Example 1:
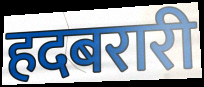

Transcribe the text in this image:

हदबरारी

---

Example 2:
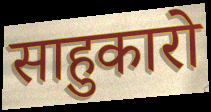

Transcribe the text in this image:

साहुकारो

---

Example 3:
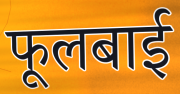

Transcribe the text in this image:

फूलबाई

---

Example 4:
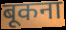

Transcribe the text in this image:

बूकना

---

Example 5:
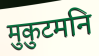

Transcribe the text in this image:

मुकुटमनि